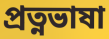
প্রত্নভাষা